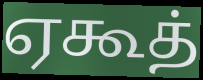
ஏகூத்